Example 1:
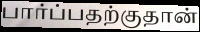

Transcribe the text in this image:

பார்ப்பதற்குதான்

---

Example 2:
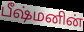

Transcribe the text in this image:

பீஷ்மனின்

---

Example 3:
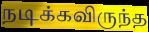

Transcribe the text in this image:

நடிக்கவிருந்த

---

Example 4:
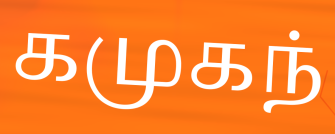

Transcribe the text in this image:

கமுகந்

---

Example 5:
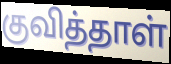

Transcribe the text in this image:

குவித்தாள்